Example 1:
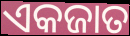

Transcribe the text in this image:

ଏକଜାତ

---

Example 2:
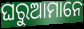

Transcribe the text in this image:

ଘରୁଆମାନେ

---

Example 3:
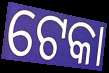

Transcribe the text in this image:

ଟେକା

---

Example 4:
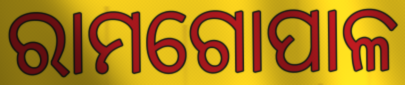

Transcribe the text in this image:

ରାମଗୋପାଳ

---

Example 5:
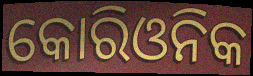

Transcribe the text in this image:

କୋରିଓନିକ